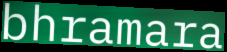
bhramara